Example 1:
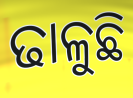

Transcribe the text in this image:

ଢାଳୁଛି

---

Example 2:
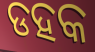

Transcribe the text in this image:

ଡହକ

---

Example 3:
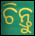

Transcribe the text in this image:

ଚିନ୍ତୁ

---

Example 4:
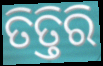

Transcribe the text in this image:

ତିତ୍ତିରି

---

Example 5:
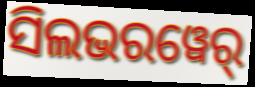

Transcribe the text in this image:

ସିଲଭରୱେର୍